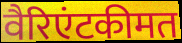
वैरिएंटकीमत